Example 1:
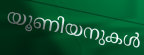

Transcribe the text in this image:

യൂണിയനുകൾ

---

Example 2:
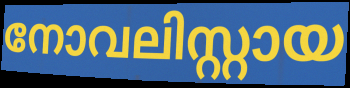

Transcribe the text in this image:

നോവലിസ്റ്റായ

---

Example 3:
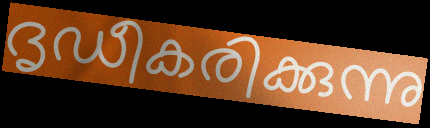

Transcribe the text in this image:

ദൃഡീകരിക്കുന്നു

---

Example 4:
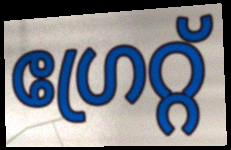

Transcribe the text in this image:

ഗ്രേറ്റ്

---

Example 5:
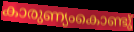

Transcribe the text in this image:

കാരുണ്യംകൊണ്ടു്